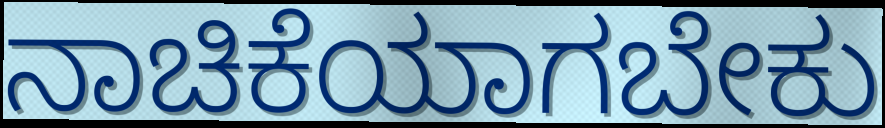
ನಾಚಿಕೆಯಾಗಬೇಕು